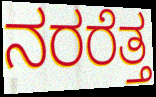
ನರರೆತ್ತ